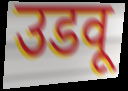
उडवू